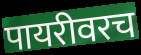
पायरीवरच